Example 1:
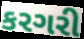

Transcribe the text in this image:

કરગરી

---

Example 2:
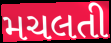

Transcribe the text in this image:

મચલતી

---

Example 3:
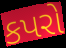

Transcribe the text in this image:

કપરો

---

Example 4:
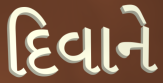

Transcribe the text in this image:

દિવાને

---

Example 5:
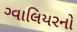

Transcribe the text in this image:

ગ્વાલિયરનો